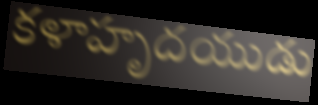
కళాహృదయుడు